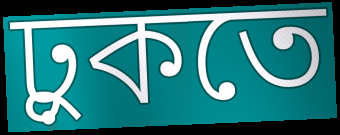
ঢ়ুকতে